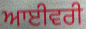
ਆਈਵਰੀ